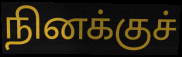
நினக்குச்